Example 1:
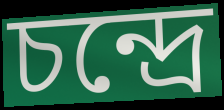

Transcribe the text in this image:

চন্দ্রে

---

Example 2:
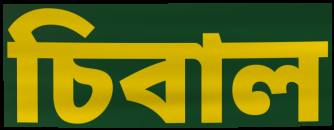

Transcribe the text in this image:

চিবাল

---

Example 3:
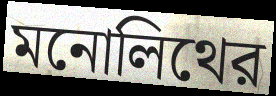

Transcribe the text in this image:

মনোলিথের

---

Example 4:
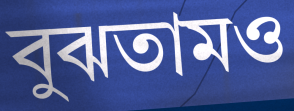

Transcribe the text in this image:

বুঝতামও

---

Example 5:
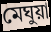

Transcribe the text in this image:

মেঘুয়া